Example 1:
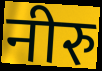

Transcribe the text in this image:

नीरु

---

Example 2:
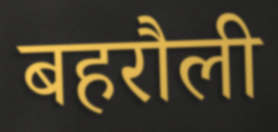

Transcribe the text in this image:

बहरौली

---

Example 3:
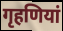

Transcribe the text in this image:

गृहणियां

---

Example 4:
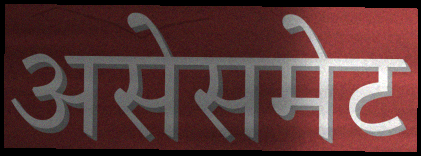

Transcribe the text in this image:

असेसमेट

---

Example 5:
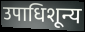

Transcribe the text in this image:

उपाधिशून्य